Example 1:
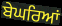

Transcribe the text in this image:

ਬੇਘਰਿਆਂ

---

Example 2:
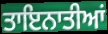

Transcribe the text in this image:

ਤਾਇਨਾਤੀਆਂ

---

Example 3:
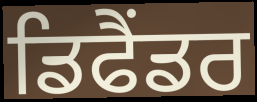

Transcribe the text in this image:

ਡਿਫੈਂਡਰ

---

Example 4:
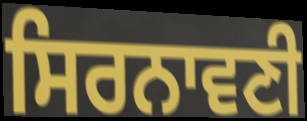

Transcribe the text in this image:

ਸਿਰਨਾਵਣੀ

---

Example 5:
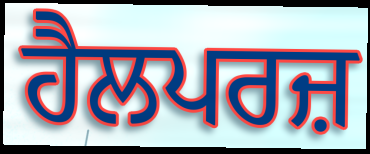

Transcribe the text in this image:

ਹੈਲਪਰਜ਼